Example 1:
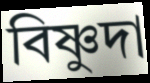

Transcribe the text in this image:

বিষ্ণুদা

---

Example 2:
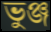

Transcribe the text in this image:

ভুঞ্জ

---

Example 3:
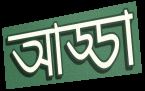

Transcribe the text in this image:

আড্ডা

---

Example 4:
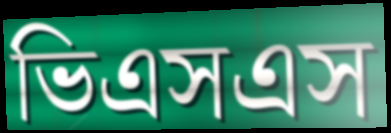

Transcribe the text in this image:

ভিএসএস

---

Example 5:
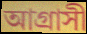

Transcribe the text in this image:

আগ্রাসী